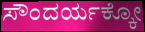
ಸೌಂದರ್ಯಕ್ಕೋ